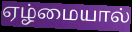
ஏழ்மையால்